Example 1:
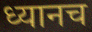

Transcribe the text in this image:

ध्यानच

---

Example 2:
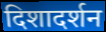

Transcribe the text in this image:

दिशादर्शन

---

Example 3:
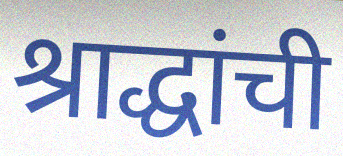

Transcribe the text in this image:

श्राद्धांची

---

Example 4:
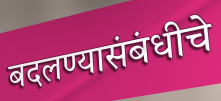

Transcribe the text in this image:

बदलण्यासंबंधीचे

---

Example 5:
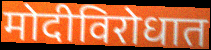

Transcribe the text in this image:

मोदीविरोधात